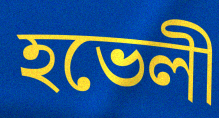
হভেলী